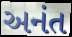
અનંત